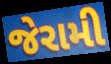
જેરામી